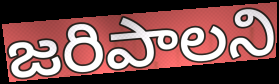
జరిపాలని